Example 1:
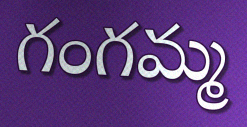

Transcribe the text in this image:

గంగమ్మ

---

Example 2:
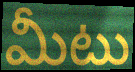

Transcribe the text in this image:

మీటు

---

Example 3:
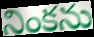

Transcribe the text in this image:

నింకను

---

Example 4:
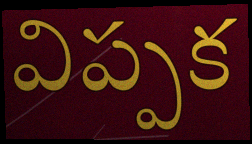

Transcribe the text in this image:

విప్పక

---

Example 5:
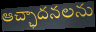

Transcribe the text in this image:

ఆచ్ఛాదనలను